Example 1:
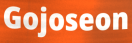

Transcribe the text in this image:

Gojoseon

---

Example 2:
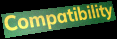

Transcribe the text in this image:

Compatibility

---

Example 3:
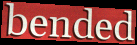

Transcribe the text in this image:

bended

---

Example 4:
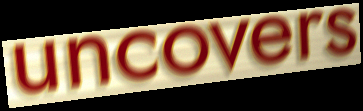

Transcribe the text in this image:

uncovers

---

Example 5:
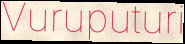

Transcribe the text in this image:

Vuruputuri